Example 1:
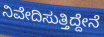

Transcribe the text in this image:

ನಿವೇದಿಸುತ್ತಿದ್ದೇನೆ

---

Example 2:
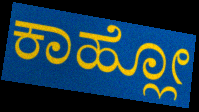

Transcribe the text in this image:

ಕಾಹ್ಲೋ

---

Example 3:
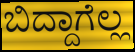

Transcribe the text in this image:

ಬಿದ್ದಾಗೆಲ್ಲ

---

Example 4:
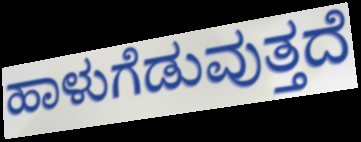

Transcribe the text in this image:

ಹಾಳುಗೆಡುವುತ್ತದೆ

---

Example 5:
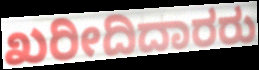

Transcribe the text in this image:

ಖರೀದಿದಾರರು